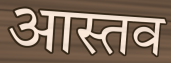
आस्तव